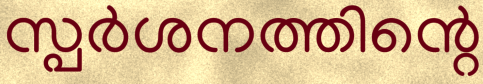
സ്പർശനത്തിന്റെ